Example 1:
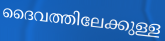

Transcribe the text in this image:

ദൈവത്തിലേക്കുള്ള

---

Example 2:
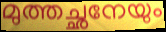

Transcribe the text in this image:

മുത്തച്ഛനേയും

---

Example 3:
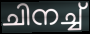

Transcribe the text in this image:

ചിനച്ച്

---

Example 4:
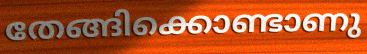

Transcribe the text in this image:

തേങ്ങിക്കൊണ്ടാണു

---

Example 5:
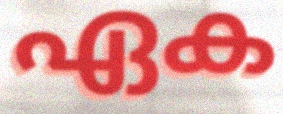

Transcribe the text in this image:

ഏക